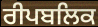
ਰੀਪਬਲਿਕ